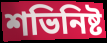
শভিনিষ্ট